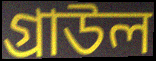
গ্রাউল